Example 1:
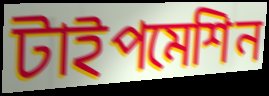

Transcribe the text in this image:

টাইপমেশিন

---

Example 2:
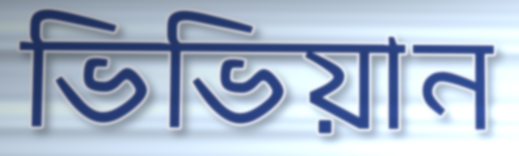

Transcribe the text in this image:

ভিভিয়ান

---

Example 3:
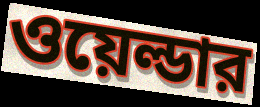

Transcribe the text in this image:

ওয়েল্ডার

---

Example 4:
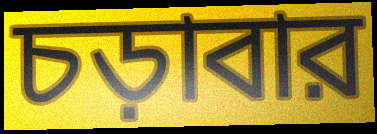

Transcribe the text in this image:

চড়াবার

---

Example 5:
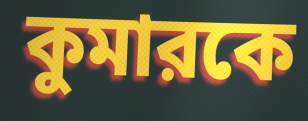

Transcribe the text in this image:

কুমারকে